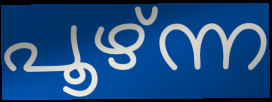
പൂഴ്ന്ന